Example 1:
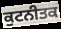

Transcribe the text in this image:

ਕੁਟਨੀਤਕ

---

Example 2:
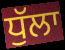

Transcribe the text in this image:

ਧੁੱਲਾ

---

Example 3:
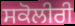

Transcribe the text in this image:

ਸਕੋਲੀਰੀ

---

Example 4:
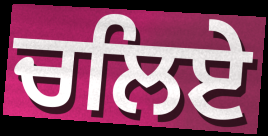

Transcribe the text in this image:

ਚਲਿਏ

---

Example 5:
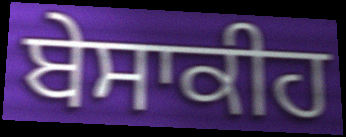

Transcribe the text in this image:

ਬੇਸਾਕੀਹ